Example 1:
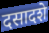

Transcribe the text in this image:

दसादशे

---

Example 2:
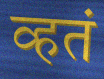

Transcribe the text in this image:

व्हतं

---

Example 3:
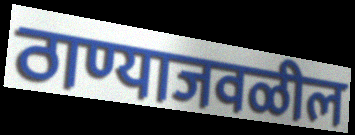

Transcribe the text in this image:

ठाण्याजवळील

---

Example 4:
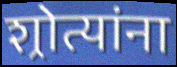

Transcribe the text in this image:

श्रोत्यांना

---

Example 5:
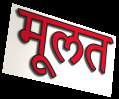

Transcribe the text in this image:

मूलत